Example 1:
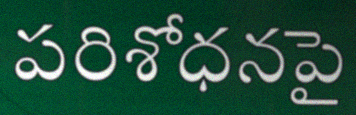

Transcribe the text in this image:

పరిశోధనపై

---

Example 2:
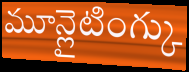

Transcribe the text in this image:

మూన్లైటింగ్కు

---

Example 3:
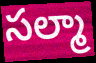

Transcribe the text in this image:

సల్మా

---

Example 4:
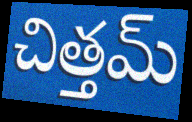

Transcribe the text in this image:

చిత్తమ్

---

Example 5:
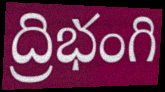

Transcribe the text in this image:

ద్రిభంగి